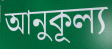
আনুকূল্য